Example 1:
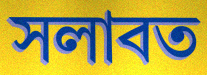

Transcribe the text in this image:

সলাবত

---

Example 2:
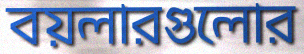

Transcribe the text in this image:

বয়লারগুলোর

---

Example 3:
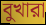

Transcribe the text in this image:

বুখারা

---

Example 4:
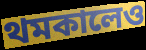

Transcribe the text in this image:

থমকালেও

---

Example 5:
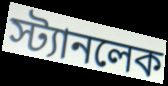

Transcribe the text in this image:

স্ট্যানলেক